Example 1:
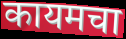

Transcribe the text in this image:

कायमचा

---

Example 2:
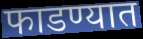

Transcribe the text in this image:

फाडण्यात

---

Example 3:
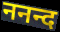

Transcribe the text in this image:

ननन्द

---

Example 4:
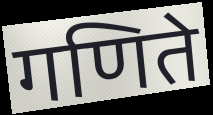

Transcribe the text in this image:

गणिते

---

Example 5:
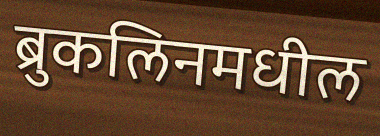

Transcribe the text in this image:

ब्रुकलिनमधील